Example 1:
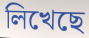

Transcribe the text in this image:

লিখেছে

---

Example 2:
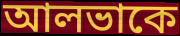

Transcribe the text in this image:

আলভাকে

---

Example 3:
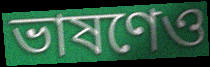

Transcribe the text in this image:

ভাষণেও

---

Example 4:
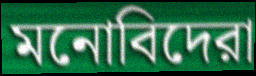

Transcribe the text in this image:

মনোবিদেরা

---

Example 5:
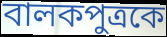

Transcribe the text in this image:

বালকপুত্রকে